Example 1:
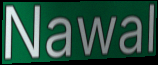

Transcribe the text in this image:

Nawal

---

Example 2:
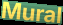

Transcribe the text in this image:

Mural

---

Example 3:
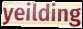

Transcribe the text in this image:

yeilding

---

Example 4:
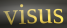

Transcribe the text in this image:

visus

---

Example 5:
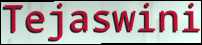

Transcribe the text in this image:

Tejaswini